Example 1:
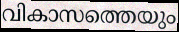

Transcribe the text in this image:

വികാസത്തെയും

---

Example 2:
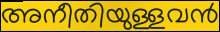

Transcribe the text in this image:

അനീതിയുള്ളവൻ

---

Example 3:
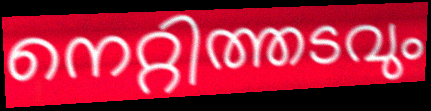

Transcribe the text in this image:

നെറ്റിത്തടവും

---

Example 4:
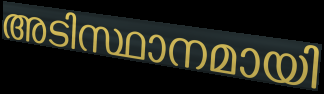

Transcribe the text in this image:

അടിസ്ഥാനമായി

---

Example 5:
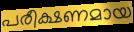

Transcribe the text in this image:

പരീക്ഷണമായ